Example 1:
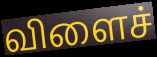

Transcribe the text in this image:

விளைச்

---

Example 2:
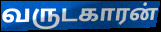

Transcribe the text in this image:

வருடகாரன்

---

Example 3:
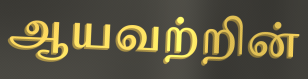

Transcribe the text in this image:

ஆயவற்றின்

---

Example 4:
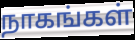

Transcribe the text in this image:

நாகங்கள்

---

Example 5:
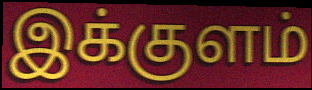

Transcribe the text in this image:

இக்குளம்